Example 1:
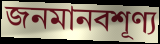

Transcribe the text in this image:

জনমানবশূণ্য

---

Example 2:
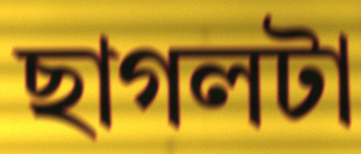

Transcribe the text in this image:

ছাগলটা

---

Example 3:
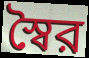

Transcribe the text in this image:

স্বৈর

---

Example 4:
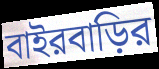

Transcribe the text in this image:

বাইরবাড়ির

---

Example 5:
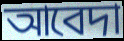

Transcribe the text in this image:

আবেদা